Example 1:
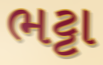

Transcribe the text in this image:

ભટ્ટા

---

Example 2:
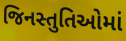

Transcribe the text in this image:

જિનસ્તુતિઓમાં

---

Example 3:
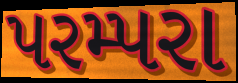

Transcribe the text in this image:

પરમ્પરા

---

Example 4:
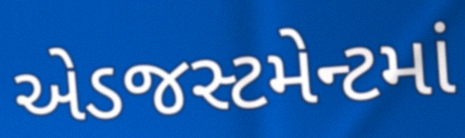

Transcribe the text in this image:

એડજસ્ટમેન્ટમાં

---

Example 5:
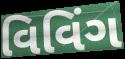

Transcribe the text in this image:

વિવિંગ